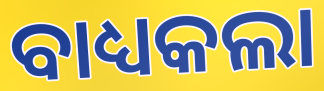
ବାଧ୍ୟକଲା